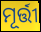
ମୂର୍ତ୍ତୀ